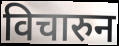
विचारुन